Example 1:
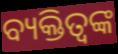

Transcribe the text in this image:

ବ୍ୟକ୍ତିତ୍ବଙ୍କ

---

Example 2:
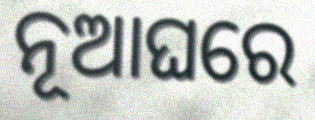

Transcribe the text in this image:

ନୂଆଘରେ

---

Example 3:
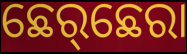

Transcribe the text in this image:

ଛେର୍‌ଛେରା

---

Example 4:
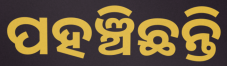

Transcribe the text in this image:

ପହଞ୍ଚିଛନ୍ତି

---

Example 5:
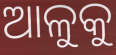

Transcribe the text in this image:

ଆଳୁକୁ